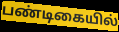
பண்டிகையில்